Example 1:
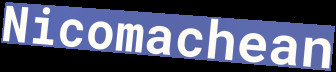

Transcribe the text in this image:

Nicomachean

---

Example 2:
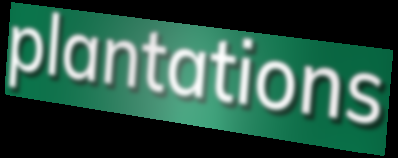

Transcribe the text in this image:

plantations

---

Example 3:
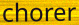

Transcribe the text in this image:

chorer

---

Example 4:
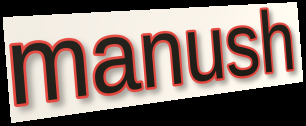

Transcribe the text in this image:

manush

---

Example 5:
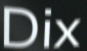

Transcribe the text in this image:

Dix